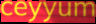
ceyyum